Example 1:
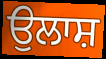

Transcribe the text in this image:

ਉਲਾਸ਼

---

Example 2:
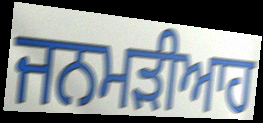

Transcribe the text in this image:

ਜਨਮੜੀਆਹ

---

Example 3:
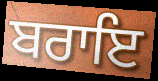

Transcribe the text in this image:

ਬਰਾਇ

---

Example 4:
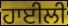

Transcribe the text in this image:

ਹਾਈਲੀ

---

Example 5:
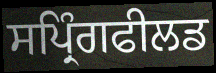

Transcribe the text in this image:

ਸਪ੍ਰਿੰਗਫੀਲਡ